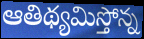
ఆతిథ్యమిస్తోన్న